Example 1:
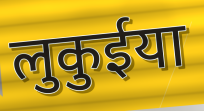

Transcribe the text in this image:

लुकुईया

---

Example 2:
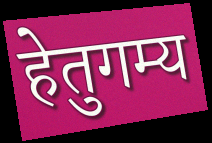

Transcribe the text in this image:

हेतुगम्य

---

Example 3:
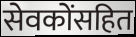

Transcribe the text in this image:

सेवकोंसहित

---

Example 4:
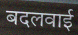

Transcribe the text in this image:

बदलवाई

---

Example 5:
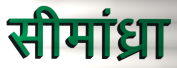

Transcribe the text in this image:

सीमांध्रा